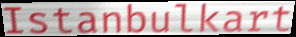
Istanbulkart